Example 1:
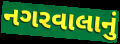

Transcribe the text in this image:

નગરવાલાનું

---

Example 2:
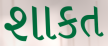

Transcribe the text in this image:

શાકત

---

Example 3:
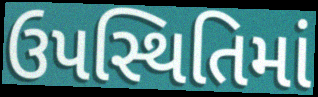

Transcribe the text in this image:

ઉપસ્થિતિમાં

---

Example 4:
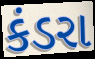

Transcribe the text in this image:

કંડરા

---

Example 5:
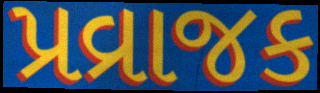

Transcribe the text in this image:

પ્રવ્રાજક